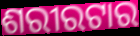
ଶରୀରଟାର